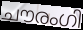
ചൗരംഗി